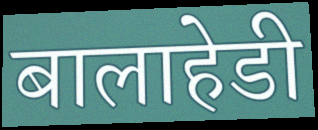
बालाहेडी